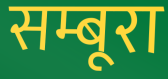
सम्बूरा